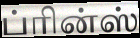
ப்ரின்ஸ்